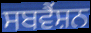
ਸਬਵੈਂਸ਼ਨ